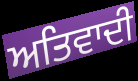
ਅਤਿਵਾਦੀ